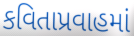
કવિતાપ્રવાહમાં